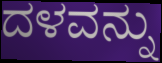
ದಳವನ್ನು